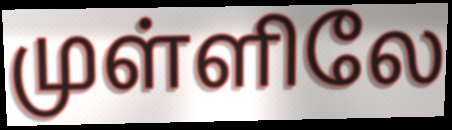
முள்ளிலே